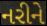
નરીને